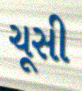
ચૂસી